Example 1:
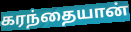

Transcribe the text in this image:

கரந்தையான்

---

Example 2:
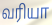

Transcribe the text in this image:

வரியா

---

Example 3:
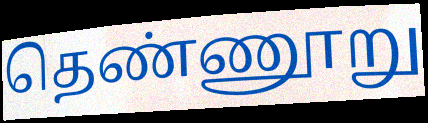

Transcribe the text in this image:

தெண்ணூறு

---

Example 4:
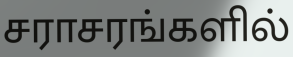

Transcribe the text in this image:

சராசரங்களில்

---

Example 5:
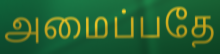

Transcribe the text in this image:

அமைப்பதே